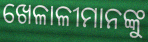
ଖେଳାଳୀମାନଙ୍କୁ